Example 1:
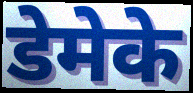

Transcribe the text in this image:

डेमेके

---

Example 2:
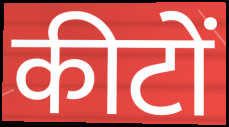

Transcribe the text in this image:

कीटों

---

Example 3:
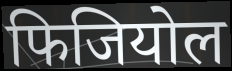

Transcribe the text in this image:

फिजियोल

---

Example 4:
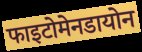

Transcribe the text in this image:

फाइटोमेनडायोन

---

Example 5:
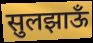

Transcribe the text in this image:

सुलझाऊँ